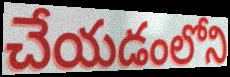
చేయడంలోని